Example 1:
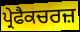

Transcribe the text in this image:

ਪ੍ਰੇਫੈਕਚਰਜ਼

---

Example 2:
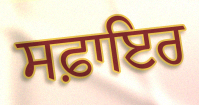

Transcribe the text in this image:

ਸਫ਼ਾਇਰ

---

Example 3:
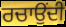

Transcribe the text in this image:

ਰਚਾਉਂਦੀ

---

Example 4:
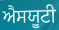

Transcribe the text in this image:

ਐਸਯੂਟੀ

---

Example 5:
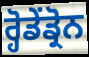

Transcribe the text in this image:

ਰ੍ਹੋਡੇਂਡ੍ਰੋਨ